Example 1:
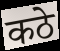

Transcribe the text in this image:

कठे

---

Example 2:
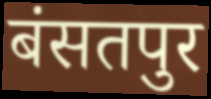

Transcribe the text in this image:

बंसतपुर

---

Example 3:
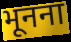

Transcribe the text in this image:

भूनना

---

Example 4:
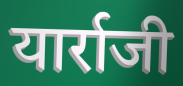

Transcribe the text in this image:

यार्राजी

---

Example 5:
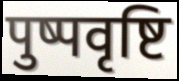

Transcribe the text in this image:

पुष्पवृष्टि